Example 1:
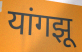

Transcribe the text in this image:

यांगझू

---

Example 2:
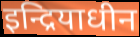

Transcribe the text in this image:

इन्द्रियाधीन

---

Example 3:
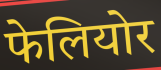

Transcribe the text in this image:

फेलियोर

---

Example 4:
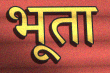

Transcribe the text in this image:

भूता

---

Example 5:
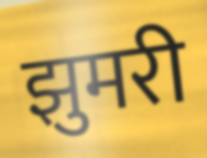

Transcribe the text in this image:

झुमरी